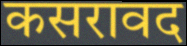
कसरावद